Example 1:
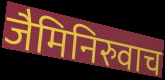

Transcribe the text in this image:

जैमिनिरुवाच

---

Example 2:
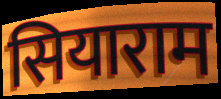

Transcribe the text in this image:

सियाराम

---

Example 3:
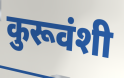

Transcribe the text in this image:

कुरूवंशी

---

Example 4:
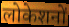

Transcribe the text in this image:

लोकेशनों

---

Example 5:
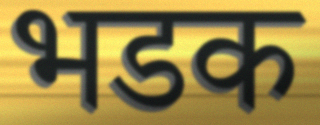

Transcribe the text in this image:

भडक